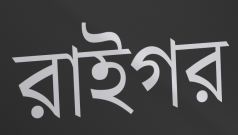
রাইগর